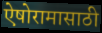
ऐषोरामासाठी